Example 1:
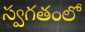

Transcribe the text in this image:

స్వగతంలో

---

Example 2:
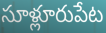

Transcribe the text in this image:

సూళ్లూరుపేట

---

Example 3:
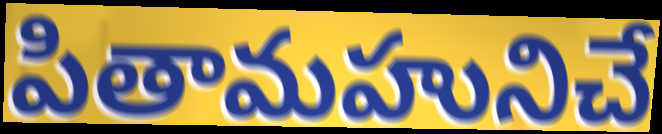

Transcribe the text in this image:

పితామహునిచే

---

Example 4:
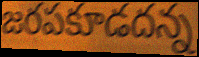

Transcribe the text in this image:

జరపకూడదన్న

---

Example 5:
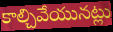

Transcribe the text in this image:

కాల్చివేయునట్లు